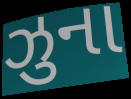
ઝુના